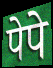
पेपे